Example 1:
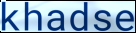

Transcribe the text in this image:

khadse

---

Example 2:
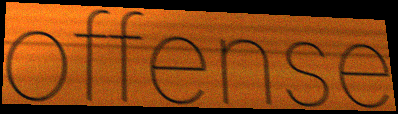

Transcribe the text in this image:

offense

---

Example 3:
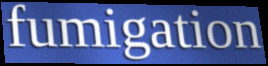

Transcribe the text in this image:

fumigation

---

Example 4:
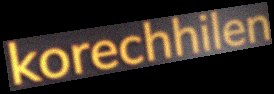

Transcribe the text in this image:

korechhilen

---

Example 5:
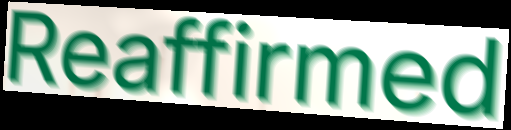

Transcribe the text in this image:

Reaffirmed